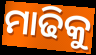
ମାଢିକୁ